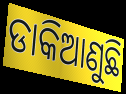
ଡାକିଆଣୁଛି